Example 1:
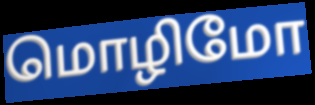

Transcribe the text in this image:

மொழிமோ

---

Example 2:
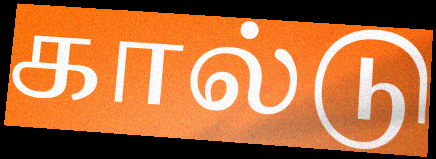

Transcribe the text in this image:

கால்டு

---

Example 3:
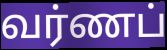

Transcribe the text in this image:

வர்ணப்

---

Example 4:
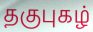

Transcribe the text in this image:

தகுபுகழ்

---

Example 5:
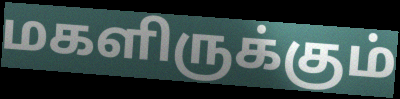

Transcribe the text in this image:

மகளிருக்கும்